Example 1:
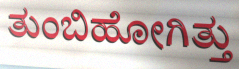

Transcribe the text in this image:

ತುಂಬಿಹೋಗಿತ್ತು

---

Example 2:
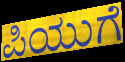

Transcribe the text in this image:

ಪಿಯುಗೆ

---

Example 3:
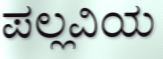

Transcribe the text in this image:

ಪಲ್ಲವಿಯ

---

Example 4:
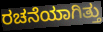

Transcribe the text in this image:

ರಚನೆಯಾಗಿತ್ತು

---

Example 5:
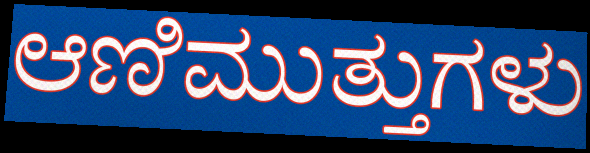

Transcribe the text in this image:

ಆಣಿಮುತ್ತುಗಳು